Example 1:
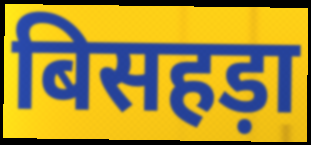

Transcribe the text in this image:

बिसहड़ा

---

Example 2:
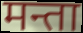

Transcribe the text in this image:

मन्ता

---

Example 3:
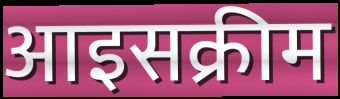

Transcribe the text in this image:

आइसक्रीम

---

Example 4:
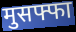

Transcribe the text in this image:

मुसफ्फा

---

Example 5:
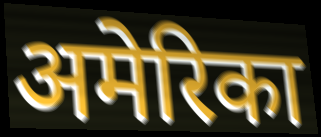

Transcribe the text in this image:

अमेरिका